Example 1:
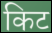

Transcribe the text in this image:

किट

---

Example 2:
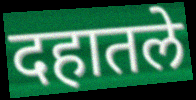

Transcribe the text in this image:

दहातले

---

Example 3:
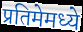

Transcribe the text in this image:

प्रतिमेमध्ये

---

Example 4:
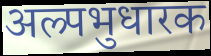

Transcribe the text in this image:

अल्पभुधारक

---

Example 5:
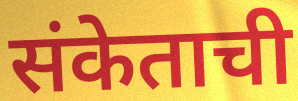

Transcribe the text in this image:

संकेताची